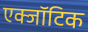
एक्जॉटिक